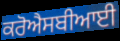
ਕਰੋਐਸਬੀਆਈ